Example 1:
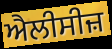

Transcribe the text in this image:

ਐਲੀਸੀਜ਼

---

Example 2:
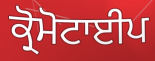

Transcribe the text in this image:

ਕ੍ਰੋਮੋਟਾਈਪ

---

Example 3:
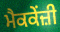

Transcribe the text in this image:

ਮੈਕਕੇਂਜ਼ੀ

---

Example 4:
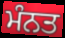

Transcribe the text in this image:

ਮੰਨਤ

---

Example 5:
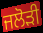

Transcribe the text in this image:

ਜਲੋੜੀ